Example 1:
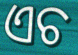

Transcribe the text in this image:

ଏଚ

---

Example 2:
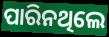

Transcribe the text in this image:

ପାରିନଥିଲେ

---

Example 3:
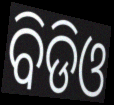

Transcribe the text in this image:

ବିଡିଓ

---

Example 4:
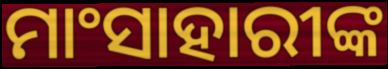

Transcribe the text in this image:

ମାଂସାହାରୀଙ୍କ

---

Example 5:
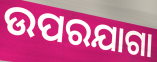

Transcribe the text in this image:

ଉପରଯାଗା